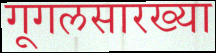
गूगलसारख्या